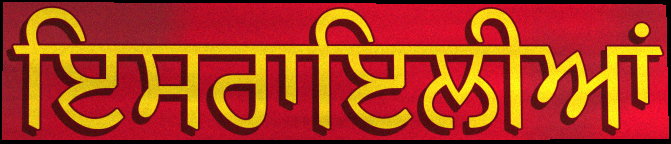
ਇਸਰਾਇਲੀਆਂ